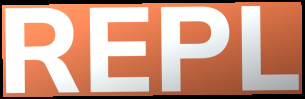
REPL